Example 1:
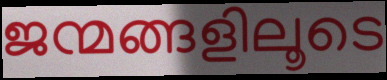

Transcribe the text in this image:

ജന്മങ്ങളിലൂടെ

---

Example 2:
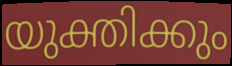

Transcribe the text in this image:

യുക്തിക്കും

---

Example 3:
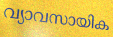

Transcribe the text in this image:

വ്യാവസായിക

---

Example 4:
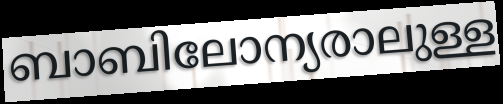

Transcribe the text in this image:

ബാബിലോന്യരാലുള്ള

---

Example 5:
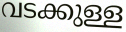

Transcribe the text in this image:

വടക്കുള്ള